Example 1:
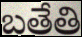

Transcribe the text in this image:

బతేతి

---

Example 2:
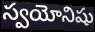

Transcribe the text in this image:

స్వయోనిషు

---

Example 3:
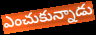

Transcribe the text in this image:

ఎంచుకున్నాడు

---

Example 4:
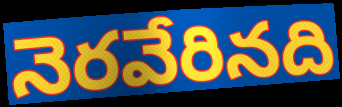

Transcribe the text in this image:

నెరవేరినది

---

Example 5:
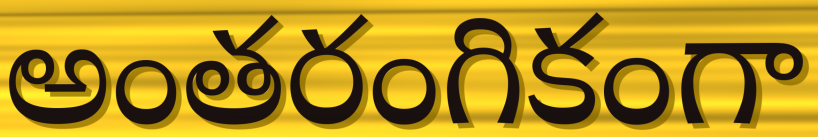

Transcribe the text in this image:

అంతరంగికంగా